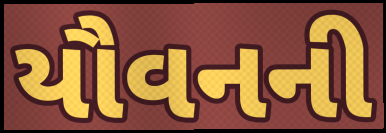
યૌવનની